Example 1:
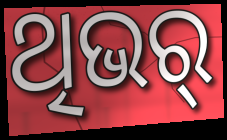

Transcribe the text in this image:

ଥିଭର୍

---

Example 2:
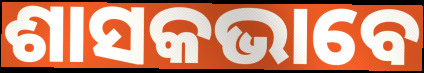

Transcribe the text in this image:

ଶାସକଭାବେ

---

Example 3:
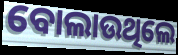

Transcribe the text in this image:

ବୋଲାଉଥିଲେ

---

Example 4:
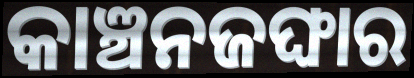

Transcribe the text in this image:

କାଞ୍ଚନଜଙ୍ଘାର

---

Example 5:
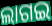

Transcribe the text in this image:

ଲାଗଇ